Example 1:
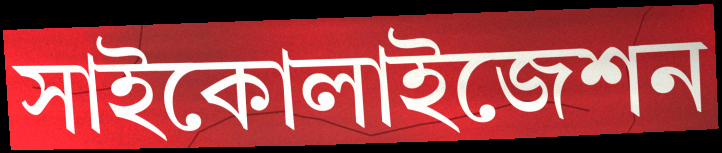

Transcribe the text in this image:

সাইকোলাইজেশন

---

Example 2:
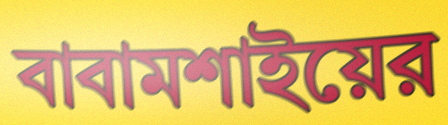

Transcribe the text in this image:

বাবামশাইয়ের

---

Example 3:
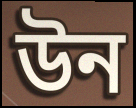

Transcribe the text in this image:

উন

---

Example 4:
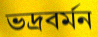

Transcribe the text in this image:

ভদ্রবর্মন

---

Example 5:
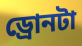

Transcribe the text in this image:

ড্রোনটা